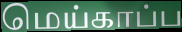
மெய்காப்ப